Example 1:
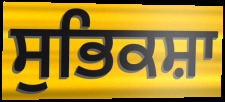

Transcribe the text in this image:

ਸੁਭਿਕਸ਼ਾ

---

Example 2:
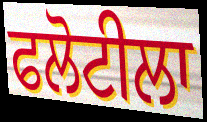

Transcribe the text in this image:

ਫਲੋਟੀਲਾ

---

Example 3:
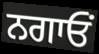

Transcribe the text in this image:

ਨਗਾਓਂ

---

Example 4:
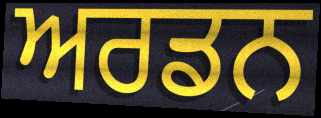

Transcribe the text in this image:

ਅਰਡਨ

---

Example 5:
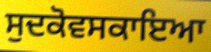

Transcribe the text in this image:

ਸੁਦਕੋਵਸਕਾਇਆ